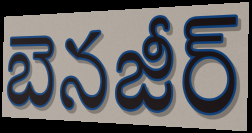
బెనజీర్